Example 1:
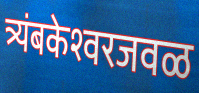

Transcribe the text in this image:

त्र्यंबकेश्वरजवळ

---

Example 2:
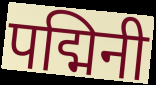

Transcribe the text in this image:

पद्मिनी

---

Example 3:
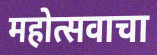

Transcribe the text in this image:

महोत्सवाचा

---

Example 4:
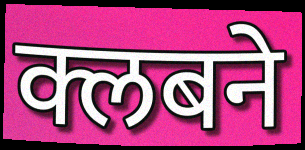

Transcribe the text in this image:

क्‍लबने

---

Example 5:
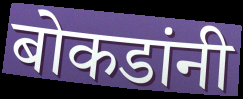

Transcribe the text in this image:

बोकडांनी